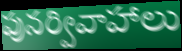
పునర్వివాహాలు